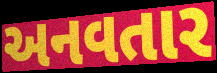
અનવતાર